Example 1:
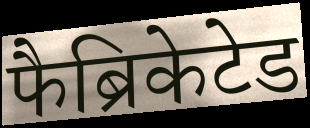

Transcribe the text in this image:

फैब्रिकेटेड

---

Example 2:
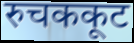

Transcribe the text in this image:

रुचककूट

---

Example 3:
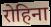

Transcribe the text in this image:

रोहिना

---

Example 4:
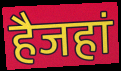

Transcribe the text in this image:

हैजहां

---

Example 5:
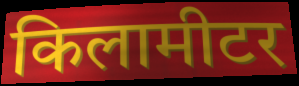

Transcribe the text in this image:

किलामीटर